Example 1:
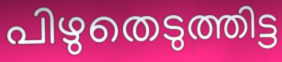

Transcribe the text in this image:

പിഴുതെടുത്തിട്ട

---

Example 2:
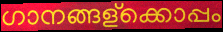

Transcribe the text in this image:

ഗാനങ്ങള്ക്കൊപ്പം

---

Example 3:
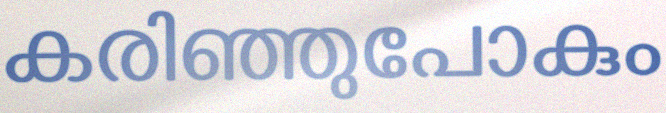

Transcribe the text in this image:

കരിഞ്ഞുപോകും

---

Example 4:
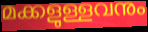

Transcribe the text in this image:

മക്കളുള്ളവനും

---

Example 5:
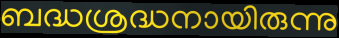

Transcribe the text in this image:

ബദ്ധശ്രദ്ധനായിരുന്നു